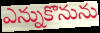
ఎన్నుకొనును